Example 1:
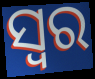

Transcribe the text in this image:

ସ୍ବର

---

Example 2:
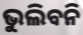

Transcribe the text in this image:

ଭୁଲିବନି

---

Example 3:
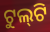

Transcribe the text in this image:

ଟୁଲ୍‌ଟି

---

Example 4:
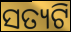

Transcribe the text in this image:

ସତ୍ୟଟି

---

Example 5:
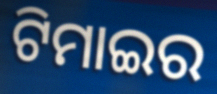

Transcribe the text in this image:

ଟିମାଇର